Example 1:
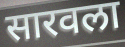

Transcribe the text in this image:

सारवला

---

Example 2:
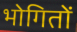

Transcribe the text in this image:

भोगितों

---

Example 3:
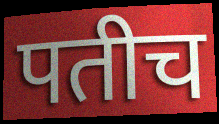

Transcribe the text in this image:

पतीच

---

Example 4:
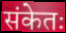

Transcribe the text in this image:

संकेतः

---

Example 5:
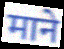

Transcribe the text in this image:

माने